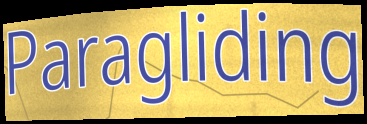
Paragliding